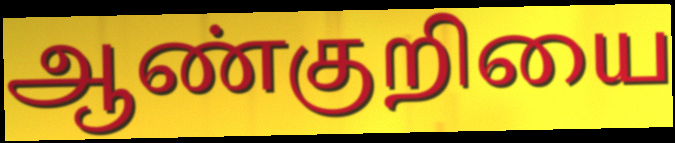
ஆண்குறியை